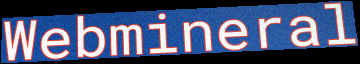
Webmineral